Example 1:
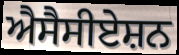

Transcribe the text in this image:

ਐਸੈਸੀਏਸ਼ਨ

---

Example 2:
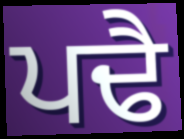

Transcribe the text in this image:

ਪਢੈ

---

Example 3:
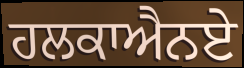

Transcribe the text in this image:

ਹਲਕਾਐਨਏ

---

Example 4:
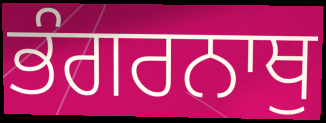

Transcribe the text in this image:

ਭੰਗਰਨਾਥੁ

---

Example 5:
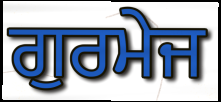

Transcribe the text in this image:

ਗੁਰਮੇਜ